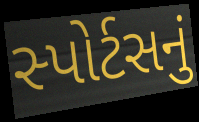
સ્પોર્ટસનું